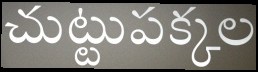
చుట్టుపక్కల